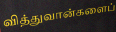
வித்துவான்களைப்